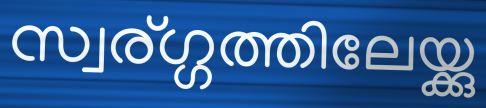
സ്വര്ഗ്ഗത്തിലേയ്ക്കു